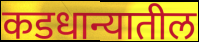
कडधान्यातील